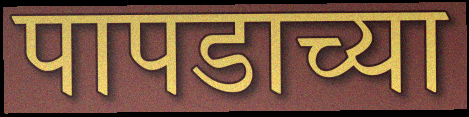
पापडाच्या